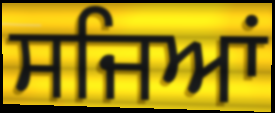
ਸਜਿਆਂ